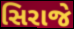
સિરાજે